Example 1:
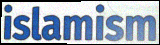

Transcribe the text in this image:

islamism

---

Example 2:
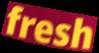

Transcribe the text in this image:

fresh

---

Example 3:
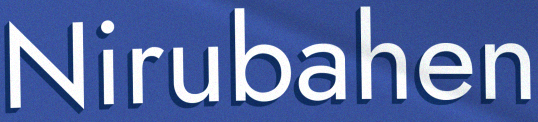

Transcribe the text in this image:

Nirubahen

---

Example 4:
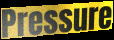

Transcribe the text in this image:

Pressure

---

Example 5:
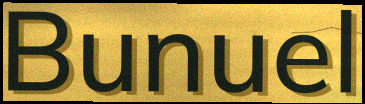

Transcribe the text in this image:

Bunuel